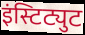
इंस्टिट्युट